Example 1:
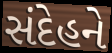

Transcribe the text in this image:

સંદેહને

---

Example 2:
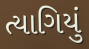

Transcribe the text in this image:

ત્યાગિયું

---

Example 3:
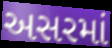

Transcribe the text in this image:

અસરમાં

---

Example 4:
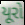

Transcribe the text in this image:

યૂરો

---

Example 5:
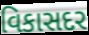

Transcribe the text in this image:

વિકાસદર